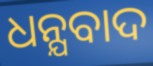
ଧନ୍ଯବାଦ